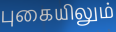
புகையிலும்